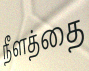
நீளத்தை